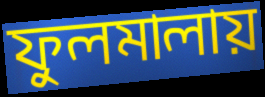
ফুলমালায়